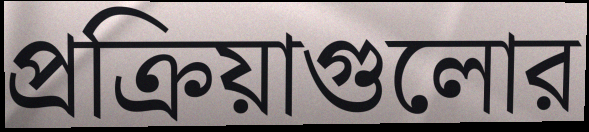
প্রক্রিয়াগুলোর